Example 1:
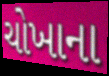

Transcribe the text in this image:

ચોખાના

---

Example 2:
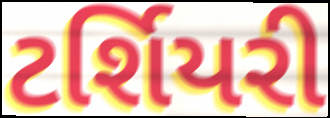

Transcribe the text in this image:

ટર્શિયરી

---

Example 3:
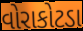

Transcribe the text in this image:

વોરાકોટડા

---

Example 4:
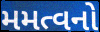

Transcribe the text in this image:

મમત્વનો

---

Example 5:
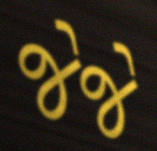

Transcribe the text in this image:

જેજે